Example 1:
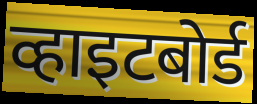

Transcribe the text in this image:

व्हाइटबोर्ड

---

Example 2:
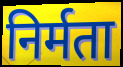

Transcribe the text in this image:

निर्मता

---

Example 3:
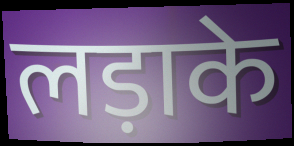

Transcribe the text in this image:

लड़ाके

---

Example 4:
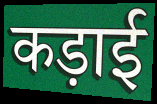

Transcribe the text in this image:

कड़ाई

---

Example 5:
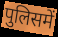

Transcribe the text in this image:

पुलिसमें